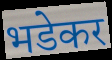
भडेकर